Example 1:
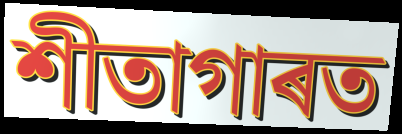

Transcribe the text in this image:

শীতাগাৰত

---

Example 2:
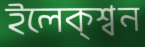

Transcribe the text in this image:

ইলেক্‌শ্বন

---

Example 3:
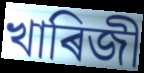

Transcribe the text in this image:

খাৰিজী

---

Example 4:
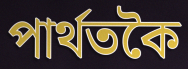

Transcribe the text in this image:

পাৰ্থতকৈ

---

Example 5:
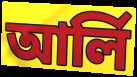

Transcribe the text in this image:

আৰ্লি